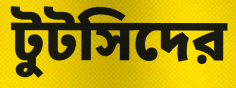
টুটসিদের